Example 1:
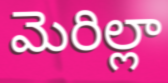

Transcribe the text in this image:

మెరిల్లా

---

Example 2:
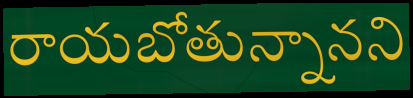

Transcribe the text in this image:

రాయబోతున్నానని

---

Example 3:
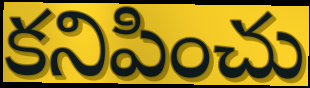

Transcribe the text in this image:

కనిపించు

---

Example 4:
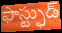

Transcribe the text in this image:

ఫాస్ట్ఫుడ్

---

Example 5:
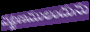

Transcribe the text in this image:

పట్టణములందును